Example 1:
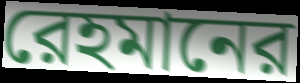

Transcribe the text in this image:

রেহমানের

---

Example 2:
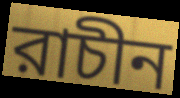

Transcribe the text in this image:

রাচীন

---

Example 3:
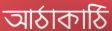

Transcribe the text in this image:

আঠাকাঠি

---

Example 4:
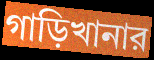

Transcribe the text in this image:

গাড়িখানার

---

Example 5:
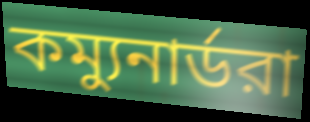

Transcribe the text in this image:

কম্যুনার্ডরা